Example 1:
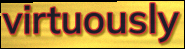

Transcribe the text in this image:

virtuously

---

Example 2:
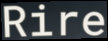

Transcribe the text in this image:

Rire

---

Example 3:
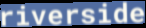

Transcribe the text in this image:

riverside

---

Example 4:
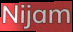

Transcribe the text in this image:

Nijam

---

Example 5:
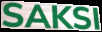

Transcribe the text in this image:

SAKSI